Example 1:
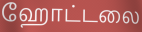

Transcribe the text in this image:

ஹோட்டலை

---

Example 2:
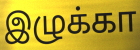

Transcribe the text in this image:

இழுக்கா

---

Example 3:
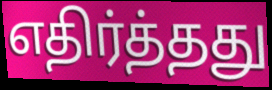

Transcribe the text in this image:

எதிர்த்தது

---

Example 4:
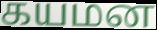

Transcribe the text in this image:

கயமன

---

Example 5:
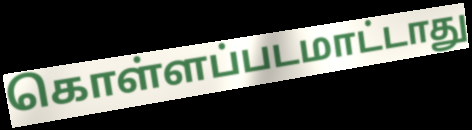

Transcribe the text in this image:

கொள்ளப்படமாட்டாது